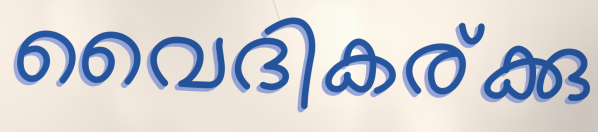
വൈദികര്ക്കു